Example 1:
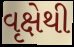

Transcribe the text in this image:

વૃક્ષેથી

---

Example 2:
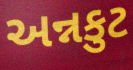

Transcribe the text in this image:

અન્નકુટ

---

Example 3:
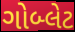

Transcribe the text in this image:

ગોબ્લેટ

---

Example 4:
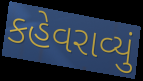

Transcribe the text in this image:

કહેવરાવ્યું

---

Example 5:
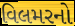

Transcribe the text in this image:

વિલમરનો